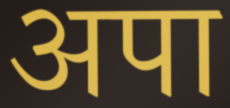
अपा